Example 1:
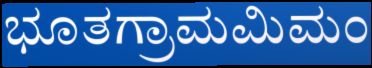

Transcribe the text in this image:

ಭೂತಗ್ರಾಮಮಿಮಂ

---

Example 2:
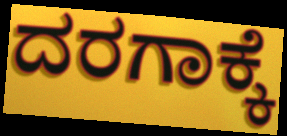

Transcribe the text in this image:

ದರಗಾಕ್ಕೆ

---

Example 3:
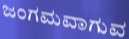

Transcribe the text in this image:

ಜಂಗಮವಾಗುವ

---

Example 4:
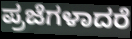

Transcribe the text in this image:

ಪ್ರಜೆಗಳಾದರೆ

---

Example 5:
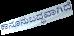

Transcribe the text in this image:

ಕಾನೂನುಬದ್ಧವಾಗಿದೆ